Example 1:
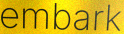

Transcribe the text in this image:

embark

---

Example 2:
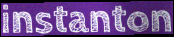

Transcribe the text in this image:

instanton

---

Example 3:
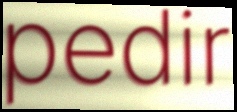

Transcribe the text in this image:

pedir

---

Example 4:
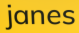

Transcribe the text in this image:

janes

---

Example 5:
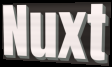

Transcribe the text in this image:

Nuxt